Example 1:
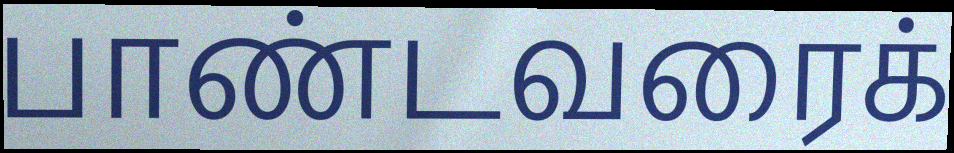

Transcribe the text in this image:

பாண்டவரைக்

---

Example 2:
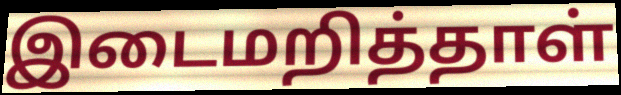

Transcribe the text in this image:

இடைமறித்தாள்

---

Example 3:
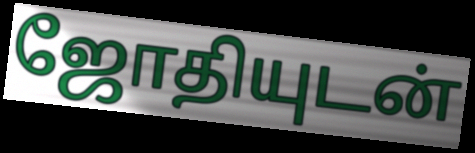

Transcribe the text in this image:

ஜோதியுடன்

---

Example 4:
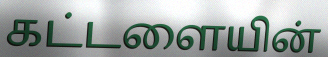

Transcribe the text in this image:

கட்டளையின்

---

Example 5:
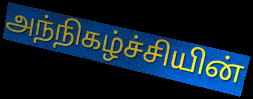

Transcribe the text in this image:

அந்நிகழ்ச்சியின்